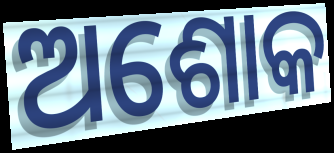
ଅଶୋକ